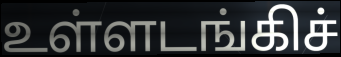
உள்ளடங்கிச்